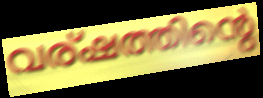
വര്ഷത്തിന്റെ